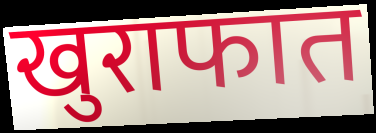
खुराफात